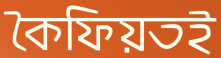
কৈফিয়তই